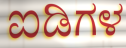
ಐಡಿಗಳ